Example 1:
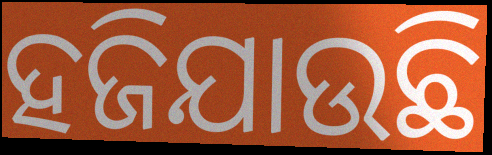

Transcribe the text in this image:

ହଜିଯାଉଛି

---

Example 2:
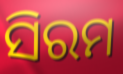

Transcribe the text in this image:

ସିରମ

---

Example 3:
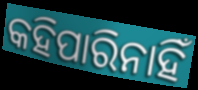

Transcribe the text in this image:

କହିପାରିନାହିଁ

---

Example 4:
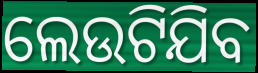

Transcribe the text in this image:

ଲେଉଟିଯିବ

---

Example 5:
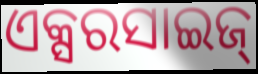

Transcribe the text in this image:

ଏକ୍ସରସାଇଜ୍